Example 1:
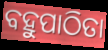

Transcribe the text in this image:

ବହୁପାଠିତା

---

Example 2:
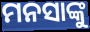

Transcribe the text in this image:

ମନସାଙ୍କୁ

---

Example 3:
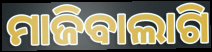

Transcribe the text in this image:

ମାଜିବାଲାଗି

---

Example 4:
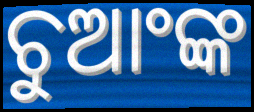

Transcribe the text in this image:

ଚୁଆଂଙ୍କ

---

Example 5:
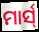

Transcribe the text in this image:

ମାର୍ସ୍